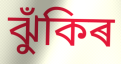
ঝুঁকিৰ